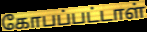
கோபப்பட்டாள்